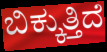
ಬಿಕ್ಕುತ್ತಿದೆ